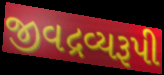
જીવદ્રવ્યરૂપી